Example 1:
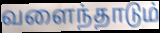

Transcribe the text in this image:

வளைந்தாடும்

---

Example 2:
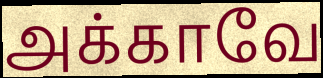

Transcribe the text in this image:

அக்காவே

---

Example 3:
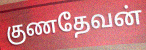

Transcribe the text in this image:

குணதேவன்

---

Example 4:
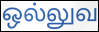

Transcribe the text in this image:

ஒல்லுவ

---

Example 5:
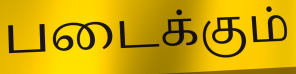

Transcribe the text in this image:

படைக்கும்